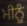
ਮੀਨੂੰ